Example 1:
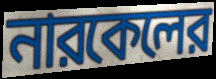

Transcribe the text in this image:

নারকেলের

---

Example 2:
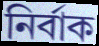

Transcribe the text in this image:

নির্বাক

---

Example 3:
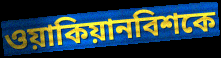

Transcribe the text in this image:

ওয়াকিয়ানবিশকে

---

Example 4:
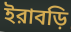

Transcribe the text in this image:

ইরাবড়ি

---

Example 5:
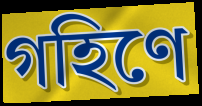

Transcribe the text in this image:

গহিণে